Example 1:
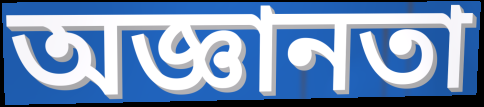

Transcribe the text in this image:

অজ্ঞানতা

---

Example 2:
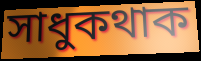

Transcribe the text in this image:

সাধুকথাক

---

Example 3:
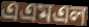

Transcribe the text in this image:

এএমএল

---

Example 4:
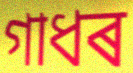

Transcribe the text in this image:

গাধৰ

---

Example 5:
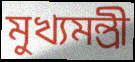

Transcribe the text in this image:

মুখ্যমন্ত্ৰী